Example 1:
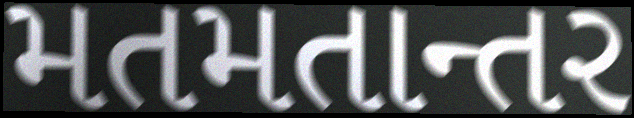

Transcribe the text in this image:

મતમતાન્તર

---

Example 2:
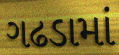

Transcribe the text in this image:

ગઢડામાં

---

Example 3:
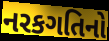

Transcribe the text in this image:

નરકગતિનો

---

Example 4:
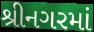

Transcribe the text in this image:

શ્રીનગરમાં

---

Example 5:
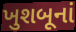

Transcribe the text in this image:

ખુશબૂનાં